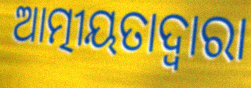
ଆତ୍ମୀୟତାଦ୍ଵାରା